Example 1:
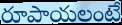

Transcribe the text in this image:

రూపాయలంటే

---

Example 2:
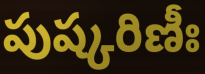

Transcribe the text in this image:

పుష్కరిణీః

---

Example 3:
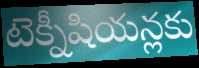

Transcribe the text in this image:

టెక్నీషియన్లకు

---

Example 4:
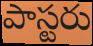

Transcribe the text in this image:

పాస్టరు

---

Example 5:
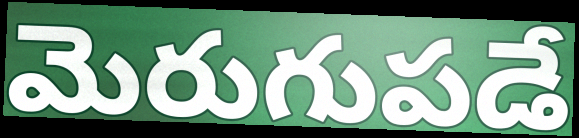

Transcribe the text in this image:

మెరుగుపడే